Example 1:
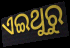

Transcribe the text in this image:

ଏଇଥୁରୁ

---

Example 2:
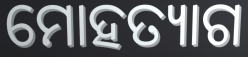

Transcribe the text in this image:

ମୋହତ୍ୟାଗ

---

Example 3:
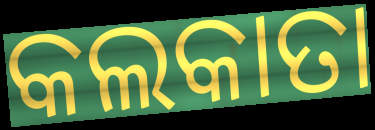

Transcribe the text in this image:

କଲକାତା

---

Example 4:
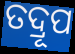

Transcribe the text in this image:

ତଦ୍ରୂପ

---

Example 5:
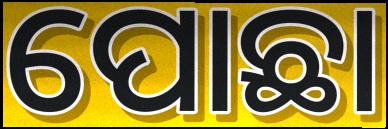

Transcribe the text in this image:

ପୋଛା